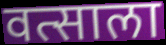
वत्साला